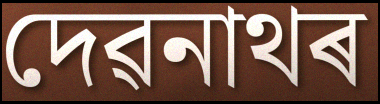
দেৱনাথৰ